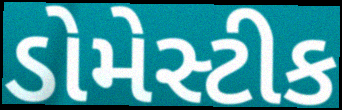
ડોમેસ્ટીક